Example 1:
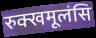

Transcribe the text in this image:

रुक्खमूलंसि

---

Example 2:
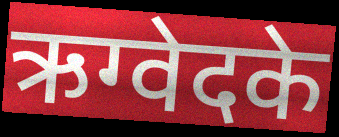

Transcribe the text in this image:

ऋग्वेदके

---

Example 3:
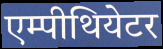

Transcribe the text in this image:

एम्पीथियेटर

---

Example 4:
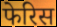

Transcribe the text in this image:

फेरिस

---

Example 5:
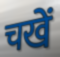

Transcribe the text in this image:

चखें